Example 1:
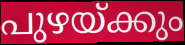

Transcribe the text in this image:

പുഴയ്ക്കും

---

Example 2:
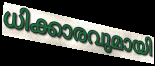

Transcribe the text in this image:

ധിക്കാരവുമായി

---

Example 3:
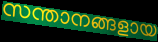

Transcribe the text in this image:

സന്താനങ്ങളായ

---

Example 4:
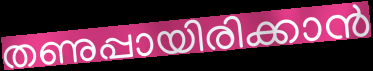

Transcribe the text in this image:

തണുപ്പായിരിക്കാൻ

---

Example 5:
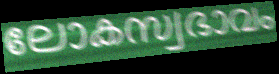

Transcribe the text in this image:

ലോകസ്വഭാവം